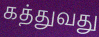
கத்துவது